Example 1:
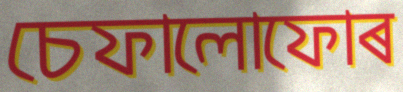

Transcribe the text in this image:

চেফালোফোৰ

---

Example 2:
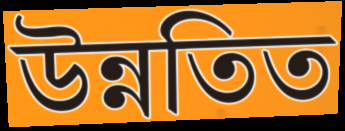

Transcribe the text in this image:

উন্নতিত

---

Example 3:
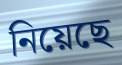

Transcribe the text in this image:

নিয়েছে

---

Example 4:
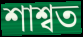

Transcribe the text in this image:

শাশ্বত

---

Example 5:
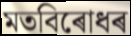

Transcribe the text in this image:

মতবিৰোধৰ